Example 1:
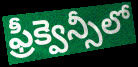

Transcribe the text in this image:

ఫ్రీక్వెన్సీలో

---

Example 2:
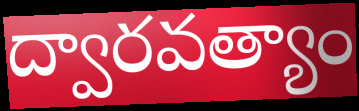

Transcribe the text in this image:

ద్వారవత్యాం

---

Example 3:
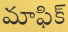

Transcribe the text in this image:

మాఫిక్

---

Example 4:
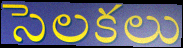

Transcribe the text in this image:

సెలకలు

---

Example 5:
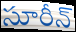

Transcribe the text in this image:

సూరీన్